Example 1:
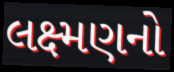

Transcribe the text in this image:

લક્ષ્મણનો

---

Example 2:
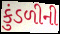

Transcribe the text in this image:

કુંડળીની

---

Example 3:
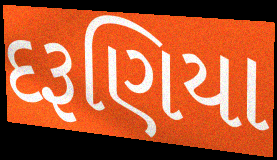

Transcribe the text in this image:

દરૂણિયા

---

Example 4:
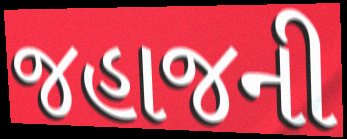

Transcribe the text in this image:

જહાજની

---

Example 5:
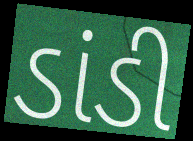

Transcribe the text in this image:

ડાંડી